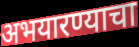
अभयारण्याचा